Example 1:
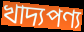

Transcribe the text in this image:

খাদ্যপণ্য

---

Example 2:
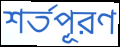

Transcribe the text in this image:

শর্তপূরণ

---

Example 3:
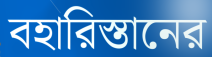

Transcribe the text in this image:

বহারিস্তানের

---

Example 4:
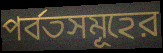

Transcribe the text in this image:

পর্বতসমূহের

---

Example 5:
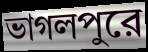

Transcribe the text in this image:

ভাগলপুরে